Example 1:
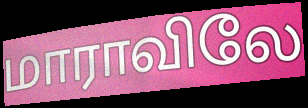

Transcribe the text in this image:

மாராவிலே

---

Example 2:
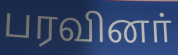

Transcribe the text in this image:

பரவினர்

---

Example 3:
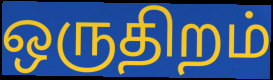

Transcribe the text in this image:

ஒருதிறம்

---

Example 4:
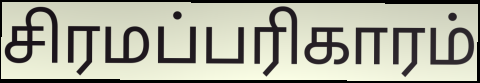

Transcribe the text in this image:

சிரமப்பரிகாரம்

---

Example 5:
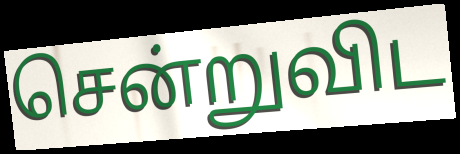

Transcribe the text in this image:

சென்றுவிட